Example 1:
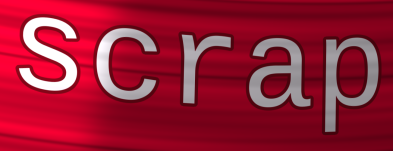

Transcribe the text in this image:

scrap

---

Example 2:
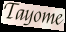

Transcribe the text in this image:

Tayome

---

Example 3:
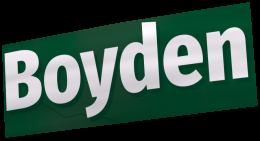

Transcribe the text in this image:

Boyden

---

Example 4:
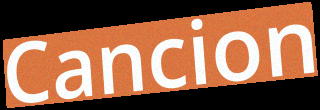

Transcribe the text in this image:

Cancion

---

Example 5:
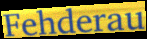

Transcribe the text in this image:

Fehderau